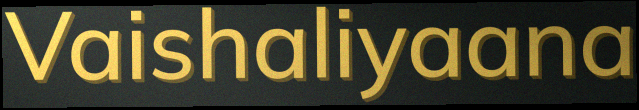
Vaishaliyaana